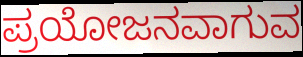
ಪ್ರಯೋಜನವಾಗುವ